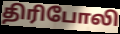
திரிபோலி